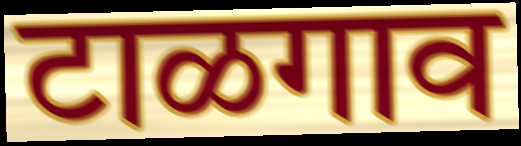
टाळगाव